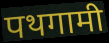
पथगामी